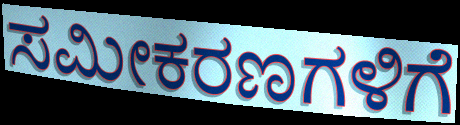
ಸಮೀಕರಣಗಳಿಗೆ